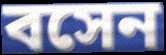
বসেন